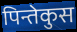
पिन्तेकुस